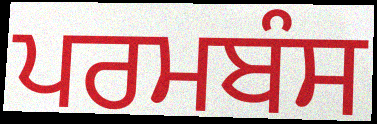
ਪਰਮਬੰਸ